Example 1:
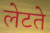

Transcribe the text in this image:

लेटते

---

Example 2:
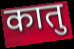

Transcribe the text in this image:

कातु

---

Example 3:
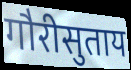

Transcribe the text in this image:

गौरीसुताय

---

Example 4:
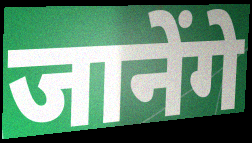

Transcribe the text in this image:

जानेंगे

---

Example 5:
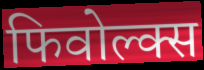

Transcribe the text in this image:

फिवोल्क्स